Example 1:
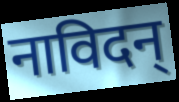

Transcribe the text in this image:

नाविदन्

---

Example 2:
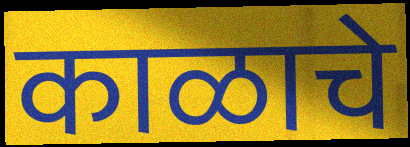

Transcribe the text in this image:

काळाचे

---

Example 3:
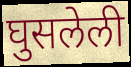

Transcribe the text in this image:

घुसलेली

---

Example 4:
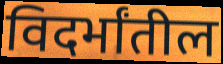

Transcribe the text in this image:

विदर्भांतील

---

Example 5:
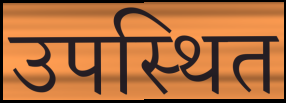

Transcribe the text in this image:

उपस्थित